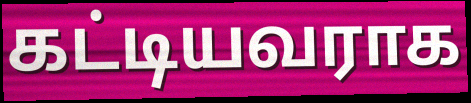
கட்டியவராக